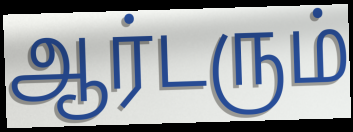
ஆர்டரும்